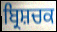
ਬ੍ਰਿਸ਼ਚਕ